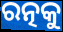
ରତ୍ନକୁ